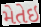
મેતેઇ